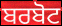
ਬਰਬੋਟ